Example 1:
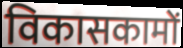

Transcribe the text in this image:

विकासकामों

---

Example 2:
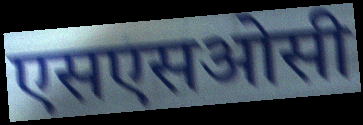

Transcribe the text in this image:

एसएसओसी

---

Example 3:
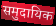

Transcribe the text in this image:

समुदायिक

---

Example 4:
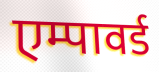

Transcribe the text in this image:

एम्पावर्ड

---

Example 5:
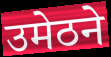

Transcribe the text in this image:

उमेठने